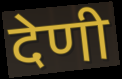
देणी